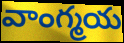
వాంగ్మయ